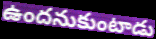
ఉందనుకుంటాడు